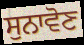
ਸੁਨਾਵੋਣ